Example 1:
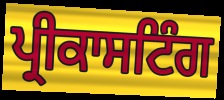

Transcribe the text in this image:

ਪ੍ਰੀਕਾਸਟਿੰਗ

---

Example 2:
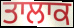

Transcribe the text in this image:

ਤਾਲਾਕ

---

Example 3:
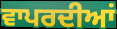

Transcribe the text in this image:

ਵਾਪਰਦੀਆਂ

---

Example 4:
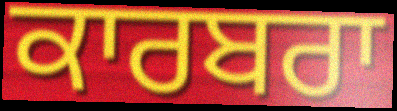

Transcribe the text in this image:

ਕਾਰਬਰਾ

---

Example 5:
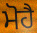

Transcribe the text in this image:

ਮੋਹੈ